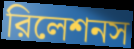
রিলেশনস